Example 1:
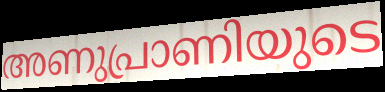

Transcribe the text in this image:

അണുപ്രാണിയുടെ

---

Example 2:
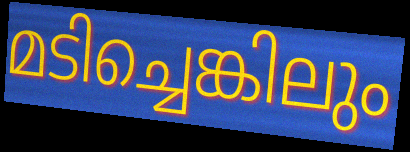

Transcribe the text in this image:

മടിച്ചെങ്കിലും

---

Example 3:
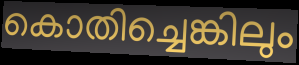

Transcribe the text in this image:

കൊതിച്ചെങ്കിലും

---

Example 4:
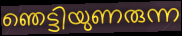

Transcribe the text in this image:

ഞെട്ടിയുണരുന്ന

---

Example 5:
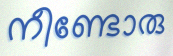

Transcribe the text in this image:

നീണ്ടോരു